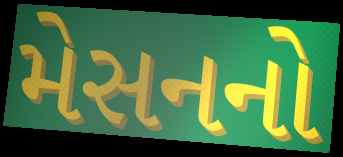
મેસનનો